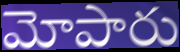
మోపారు